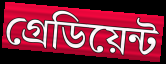
গ্রেডিয়েন্ট